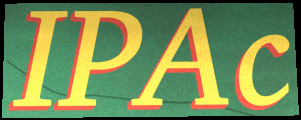
IPAc